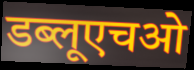
डब्लूएचओ